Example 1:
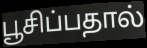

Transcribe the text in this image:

பூசிப்பதால்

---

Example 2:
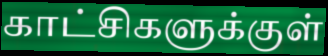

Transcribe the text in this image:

காட்சிகளுக்குள்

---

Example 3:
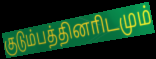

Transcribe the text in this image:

குடும்பத்தினரிடமும்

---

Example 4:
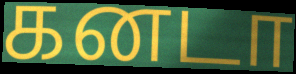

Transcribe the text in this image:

கனடா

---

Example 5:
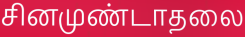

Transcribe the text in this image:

சினமுண்டாதலை